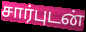
சார்புடன்